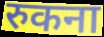
रुकना